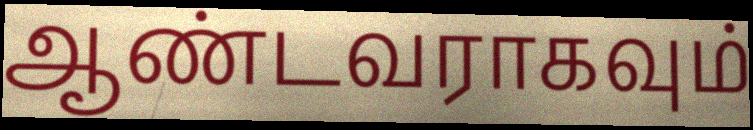
ஆண்டவராகவும்